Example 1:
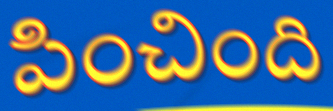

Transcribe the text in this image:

పించింది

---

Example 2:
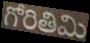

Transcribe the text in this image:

గోరితిమి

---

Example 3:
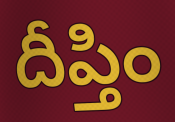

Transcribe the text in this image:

దీప్తిం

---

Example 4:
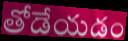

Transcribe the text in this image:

తోడేయడం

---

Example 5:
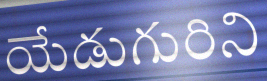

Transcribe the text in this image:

యేడుగురిని